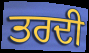
ਤਰਦੀ